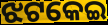
ଝଟକେଇ